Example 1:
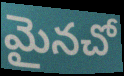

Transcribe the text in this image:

మైనచో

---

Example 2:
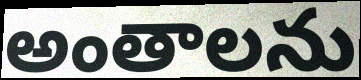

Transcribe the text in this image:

అంతాలను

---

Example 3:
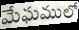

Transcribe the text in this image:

మేఘములో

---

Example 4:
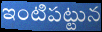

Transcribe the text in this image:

ఇంటిపట్టున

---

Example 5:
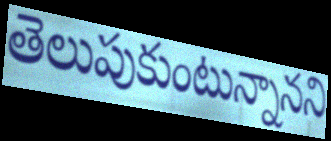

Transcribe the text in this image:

తెలుపుకుంటున్నానని